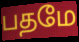
பதமே